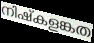
നിഷ്‌കളങ്കത